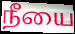
நீயை